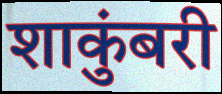
शाकुंबरी